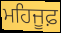
ਮਹਿਜੂਫ਼